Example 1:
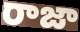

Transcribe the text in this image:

రాజా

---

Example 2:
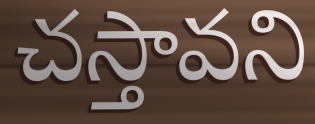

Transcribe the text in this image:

చస్తావని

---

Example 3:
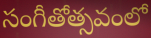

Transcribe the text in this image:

సంగీతోత్సవంలో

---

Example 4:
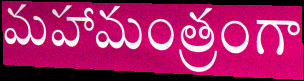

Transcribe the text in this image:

మహామంత్రంగా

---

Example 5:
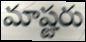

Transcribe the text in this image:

మాష్టరు